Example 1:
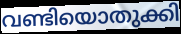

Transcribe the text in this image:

വണ്ടിയൊതുക്കി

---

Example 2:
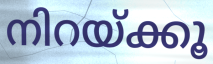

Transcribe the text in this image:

നിറയ്ക്കൂ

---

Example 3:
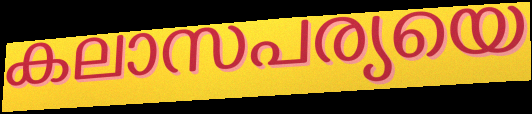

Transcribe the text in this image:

കലാസപര്യയെ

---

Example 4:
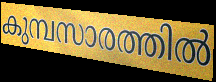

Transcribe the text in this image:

കുമ്പസാരത്തിൽ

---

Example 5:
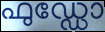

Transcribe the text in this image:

ഫുഡ്ഡോ